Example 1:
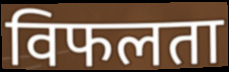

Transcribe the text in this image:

विफलता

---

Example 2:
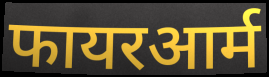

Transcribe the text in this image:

फायरआर्म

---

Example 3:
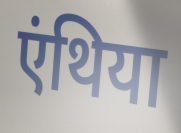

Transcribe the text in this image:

एंथिया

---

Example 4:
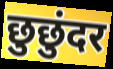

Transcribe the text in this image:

छुछुंदर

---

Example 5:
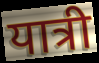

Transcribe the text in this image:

यात्री